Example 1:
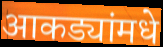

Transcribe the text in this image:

आकड्यांमधे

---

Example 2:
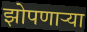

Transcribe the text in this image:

झोपणाऱ्या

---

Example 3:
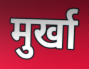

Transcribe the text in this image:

मुर्खा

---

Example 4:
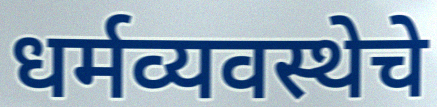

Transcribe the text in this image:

धर्मव्यवस्थेचे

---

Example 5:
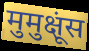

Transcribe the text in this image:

मुमुक्षूंस